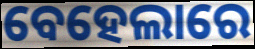
ବେହେଲାରେ